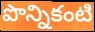
పొన్నికంటి